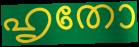
ഹൃതോ